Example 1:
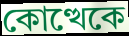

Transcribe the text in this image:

কোত্থেকে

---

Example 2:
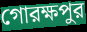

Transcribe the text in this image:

গোরক্ষপুর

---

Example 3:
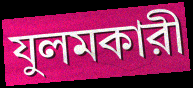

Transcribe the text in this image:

যুলমকারী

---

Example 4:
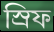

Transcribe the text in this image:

স্রিফ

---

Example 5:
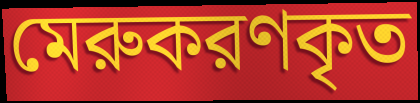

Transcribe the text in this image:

মেরুকরণকৃত